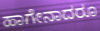
ಹಾಗೇನಾದರೂ